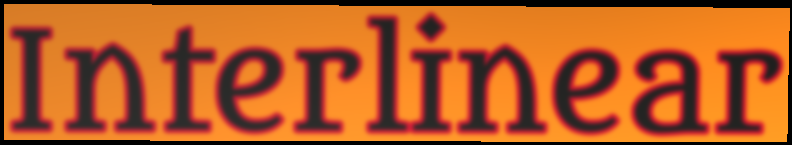
Interlinear